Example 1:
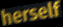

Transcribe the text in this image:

herself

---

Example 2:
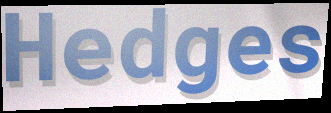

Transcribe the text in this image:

Hedges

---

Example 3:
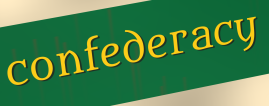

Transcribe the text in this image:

confederacy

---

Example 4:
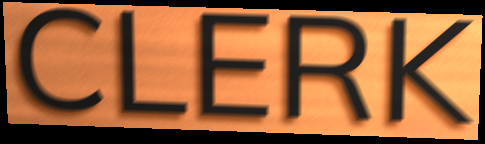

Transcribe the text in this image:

CLERK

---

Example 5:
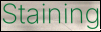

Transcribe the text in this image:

Staining